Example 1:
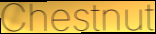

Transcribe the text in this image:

Chestnut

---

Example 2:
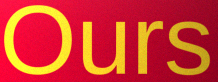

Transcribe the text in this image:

Ours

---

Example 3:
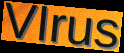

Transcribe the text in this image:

VIrus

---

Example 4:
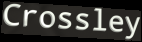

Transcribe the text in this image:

Crossley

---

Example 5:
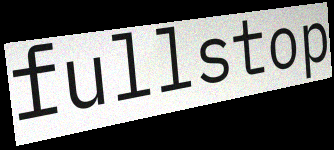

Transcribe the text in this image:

fullstop